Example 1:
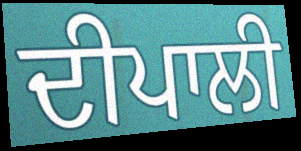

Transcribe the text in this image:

ਦੀਪਾਲੀ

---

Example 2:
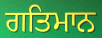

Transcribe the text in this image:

ਗਤਿਮਾਨ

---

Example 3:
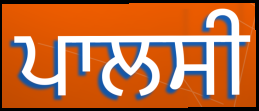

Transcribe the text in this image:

ਪਾਲਸੀ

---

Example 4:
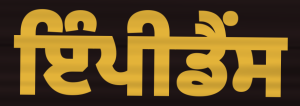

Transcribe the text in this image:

ਇੰਪੀਡੈਂਸ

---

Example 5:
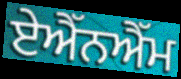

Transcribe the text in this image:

ਏਐੱਨਐੱਮ